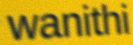
wanithi